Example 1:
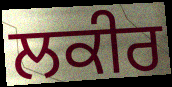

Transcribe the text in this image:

ਲਕੀਰ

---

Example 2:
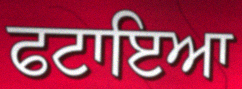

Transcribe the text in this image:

ਫਟਾਇਆ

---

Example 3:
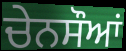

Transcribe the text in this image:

ਚੇਨਸੌਆਂ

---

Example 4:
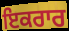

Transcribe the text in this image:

ਇਕਰਾਰ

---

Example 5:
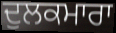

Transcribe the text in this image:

ਦੁਲਕਮਾਰਾ